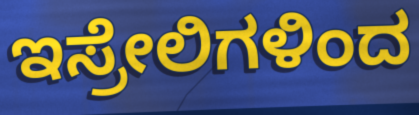
ಇಸ್ರೇಲಿಗಳಿಂದ